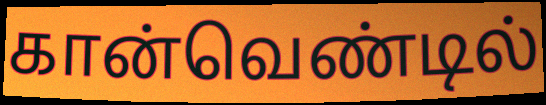
கான்வெண்டில்